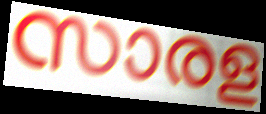
സാരള